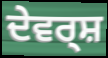
ਦੇਵਰ੍ਸ਼